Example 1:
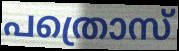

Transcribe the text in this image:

പത്രൊസ്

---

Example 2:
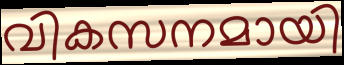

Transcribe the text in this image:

വികസനമായി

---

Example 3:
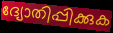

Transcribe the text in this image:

ദ്യോതിപ്പിക്കുക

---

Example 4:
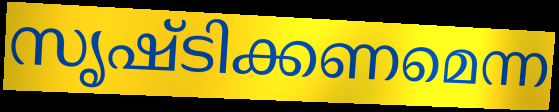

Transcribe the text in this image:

സൃഷ്ടിക്കണമെന്ന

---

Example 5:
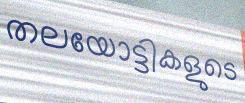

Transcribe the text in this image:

തലയോട്ടികളുടെ